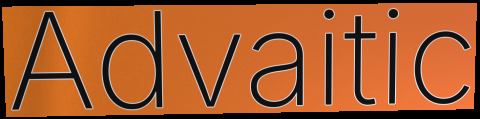
Advaitic